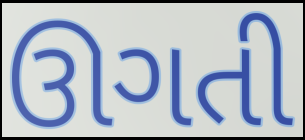
ઊગતી